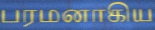
பரமனாகிய